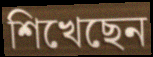
শিখেছেন